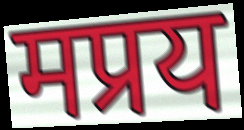
मप्रय